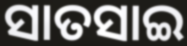
ସାତସାଇ